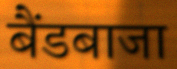
बैंडबाजा